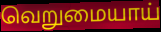
வெறுமையாய்